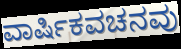
ವಾರ್ಷಿಕವಚನವು